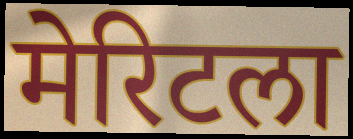
मेरिटला